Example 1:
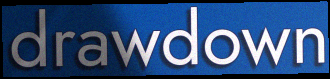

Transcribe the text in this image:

drawdown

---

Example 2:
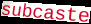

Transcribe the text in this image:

subcaste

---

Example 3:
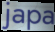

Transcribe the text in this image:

japa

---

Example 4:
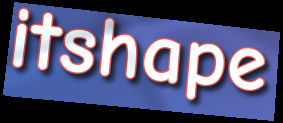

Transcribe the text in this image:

itshape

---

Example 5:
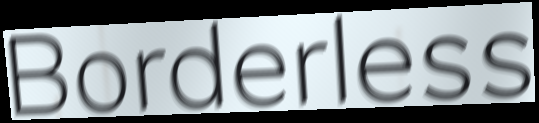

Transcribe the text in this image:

Borderless